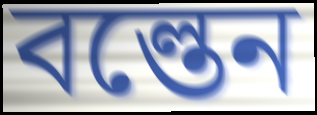
বল্তেন